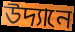
উদ্যানে